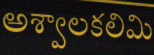
అశ్వాలకలిమి